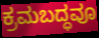
ಕ್ರಮಬದ್ಧವೂ